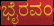
ಭೈರವಂ